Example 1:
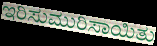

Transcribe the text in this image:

ಇರಿಸುಮುರಿಸಾಯಿತು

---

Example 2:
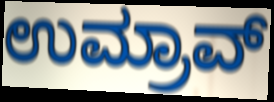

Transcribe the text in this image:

ಉಮ್ರಾವ್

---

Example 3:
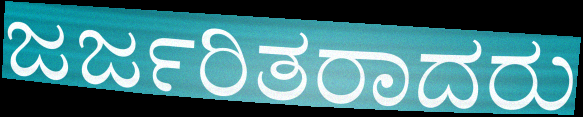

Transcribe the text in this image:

ಜರ್ಜರಿತರಾದರು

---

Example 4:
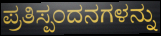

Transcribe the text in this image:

ಪ್ರತಿಸ್ಪಂದನಗಳನ್ನು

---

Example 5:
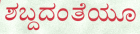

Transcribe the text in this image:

ಶಬ್ದದಂತೆಯೂ